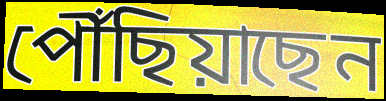
পৌঁছিয়াছেন